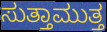
ಸುತ್ತಾಮುತ್ತ